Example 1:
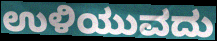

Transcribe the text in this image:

ಉಳಿಯುವದು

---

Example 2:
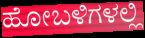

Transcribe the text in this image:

ಹೋಬಳಿಗಳಲ್ಲಿ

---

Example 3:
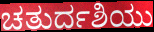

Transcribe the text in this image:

ಚತುರ್ದಶಿಯು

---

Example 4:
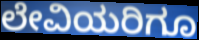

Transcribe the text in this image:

ಲೇವಿಯರಿಗೂ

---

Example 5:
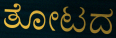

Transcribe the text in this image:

ತೋಟದ